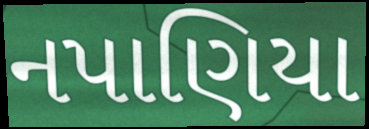
નપાણિયા